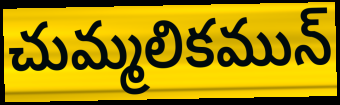
చుమ్మలికమున్